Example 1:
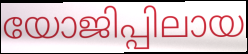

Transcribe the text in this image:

യോജിപ്പിലായ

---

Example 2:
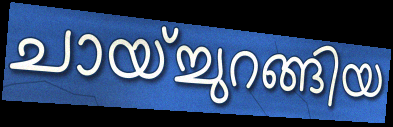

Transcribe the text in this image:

ചായ്ച്ചുറങ്ങിയ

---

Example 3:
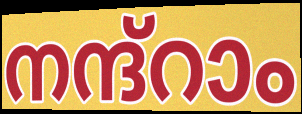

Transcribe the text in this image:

നന്ദ്റാം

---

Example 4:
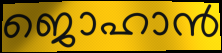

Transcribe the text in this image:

ജൊഹാൻ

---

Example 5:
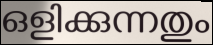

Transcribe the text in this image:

ഒളിക്കുന്നതും